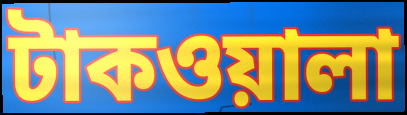
টাকওয়ালা